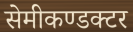
सेमीकण्डक्टर